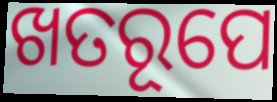
ଖତରୂପେ